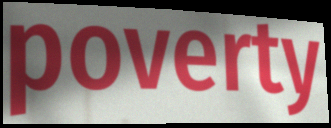
poverty